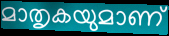
മാതൃകയുമാണ്